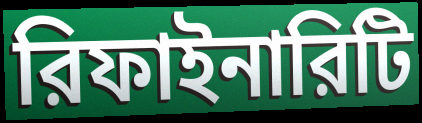
রিফাইনারিটি